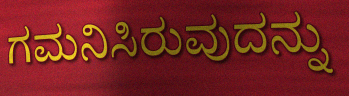
ಗಮನಿಸಿರುವುದನ್ನು